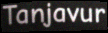
Tanjavur